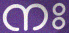
നഃ